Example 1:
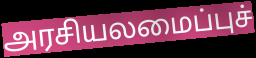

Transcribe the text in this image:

அரசியலமைப்புச்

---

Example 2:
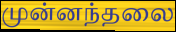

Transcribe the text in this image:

முன்னந்தலை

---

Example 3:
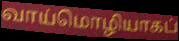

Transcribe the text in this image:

வாய்மொழியாகப்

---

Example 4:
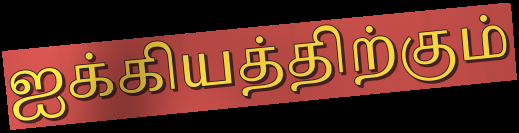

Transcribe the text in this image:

ஐக்கியத்திற்கும்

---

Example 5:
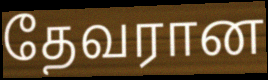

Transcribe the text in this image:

தேவரான